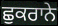
ਛੁਕਰਾਨੇ